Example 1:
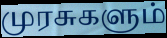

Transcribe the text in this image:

முரசுகளும்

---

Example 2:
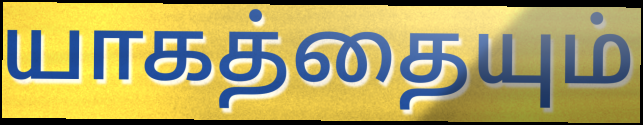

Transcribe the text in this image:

யாகத்தையும்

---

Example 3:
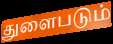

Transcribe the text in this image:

துளைபடும்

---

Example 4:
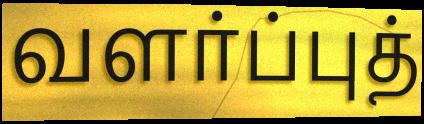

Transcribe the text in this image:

வளர்ப்புத்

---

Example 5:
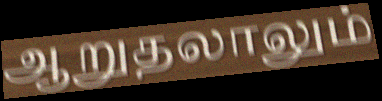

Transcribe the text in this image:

ஆறுதலாலும்